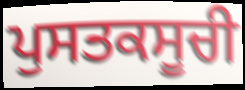
ਪੁਸਤਕਸੂਚੀ